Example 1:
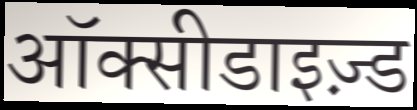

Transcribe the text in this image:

ऑक्सीडाइज़्ड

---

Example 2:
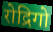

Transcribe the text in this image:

रोद्रिगो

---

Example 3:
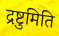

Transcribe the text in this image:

द्रष्टुमिति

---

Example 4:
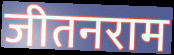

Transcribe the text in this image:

जीतनराम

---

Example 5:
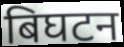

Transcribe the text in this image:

बिघटन